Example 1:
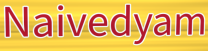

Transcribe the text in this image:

Naivedyam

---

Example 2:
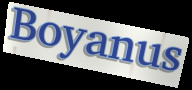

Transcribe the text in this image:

Boyanus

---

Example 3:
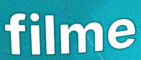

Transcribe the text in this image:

filme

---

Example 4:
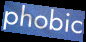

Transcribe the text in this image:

phobic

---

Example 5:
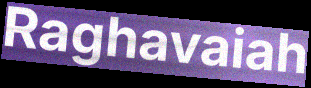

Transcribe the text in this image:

Raghavaiah